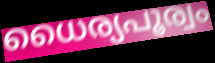
ധൈര്യപൂര്വം